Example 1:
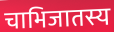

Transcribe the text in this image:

चाभिजातस्य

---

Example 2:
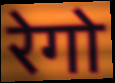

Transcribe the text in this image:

रेगो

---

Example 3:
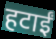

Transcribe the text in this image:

हटाईं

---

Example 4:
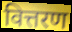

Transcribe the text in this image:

वित्तरण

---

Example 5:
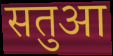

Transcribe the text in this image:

सतुआ